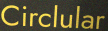
Circlular